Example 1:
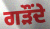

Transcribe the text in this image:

ਗੜੌਂਦੇ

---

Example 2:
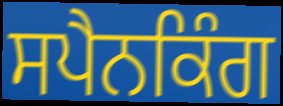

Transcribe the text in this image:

ਸਪੈਨਕਿੰਗ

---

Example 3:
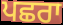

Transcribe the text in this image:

ਪਛਰਾ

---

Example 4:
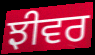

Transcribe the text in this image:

ਝੀਵਰ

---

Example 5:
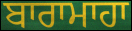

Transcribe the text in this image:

ਬਾਰਾਮਾਹਾ